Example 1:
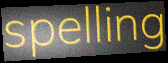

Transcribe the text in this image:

spelling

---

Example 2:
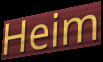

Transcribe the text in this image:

Heim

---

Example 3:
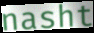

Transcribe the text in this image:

nasht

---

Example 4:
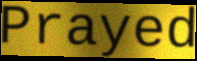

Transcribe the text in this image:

Prayed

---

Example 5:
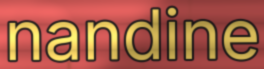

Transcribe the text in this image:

nandine